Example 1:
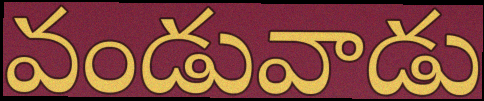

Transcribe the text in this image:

వండువాడు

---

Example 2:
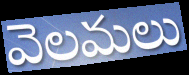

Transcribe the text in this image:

వెలమలు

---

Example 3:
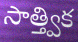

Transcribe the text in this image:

సాత్త్విక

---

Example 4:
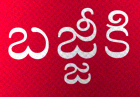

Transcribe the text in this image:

బజ్జీకి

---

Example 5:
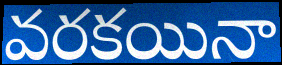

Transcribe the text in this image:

వరకయినా